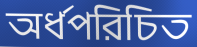
অর্ধপরিচিত